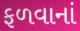
ફળવાનાં